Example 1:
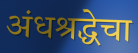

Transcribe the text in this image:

अंधश्रद्धेचा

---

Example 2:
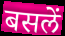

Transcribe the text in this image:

बसलें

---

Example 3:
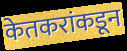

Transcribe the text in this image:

केतकरांकडून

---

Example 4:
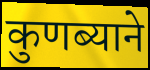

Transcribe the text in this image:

कुणब्याने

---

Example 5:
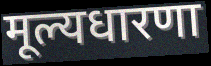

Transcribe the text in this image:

मूल्यधारणा